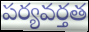
పర్యవర్తత